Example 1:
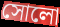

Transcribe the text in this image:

সোলো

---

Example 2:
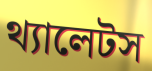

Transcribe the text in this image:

থ্যালেটস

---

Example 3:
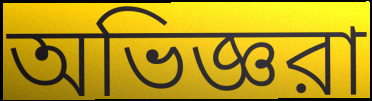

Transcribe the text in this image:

অভিজ্ঞরা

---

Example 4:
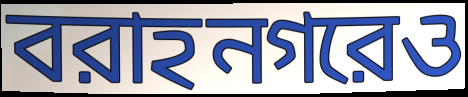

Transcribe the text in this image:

বরাহনগরেও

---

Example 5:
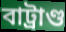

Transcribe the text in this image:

বাট্রাণ্ড